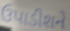
ઉપાડીશને